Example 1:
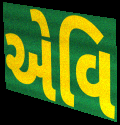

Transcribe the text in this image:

એવિ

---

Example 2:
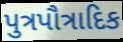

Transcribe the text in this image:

પુત્રપૌત્રાદિક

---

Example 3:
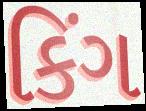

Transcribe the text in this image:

કિંગ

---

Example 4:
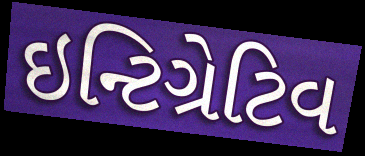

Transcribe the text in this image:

ઇન્ટિગ્રેટિવ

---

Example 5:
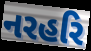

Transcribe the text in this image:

નરહરિ